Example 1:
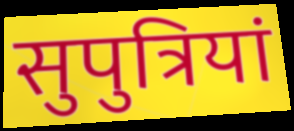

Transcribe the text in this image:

सुपुत्रियां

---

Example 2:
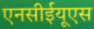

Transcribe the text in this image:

एनसीईयूएस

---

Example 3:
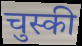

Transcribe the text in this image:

चुस्की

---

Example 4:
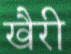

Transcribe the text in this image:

खैरी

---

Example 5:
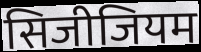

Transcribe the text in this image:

सिजीजियम